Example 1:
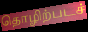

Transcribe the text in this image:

தொழிற்படச்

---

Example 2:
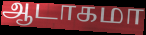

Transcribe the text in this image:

ஆடாகமா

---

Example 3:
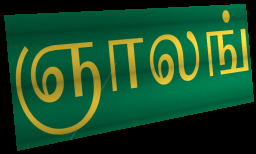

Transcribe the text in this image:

ஞாலங்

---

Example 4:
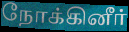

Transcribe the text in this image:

நோக்கினீர்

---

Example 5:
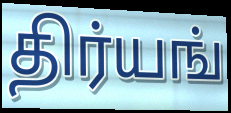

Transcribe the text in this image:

திர்யங்